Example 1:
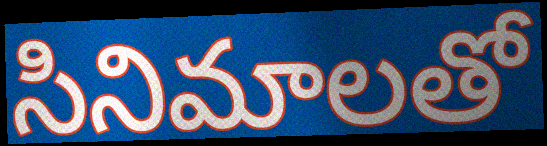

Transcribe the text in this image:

సినిమాలతో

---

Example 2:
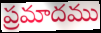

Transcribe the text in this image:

ప్రమాదము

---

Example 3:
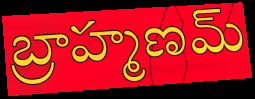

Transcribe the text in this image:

బ్రాహ్మణమ్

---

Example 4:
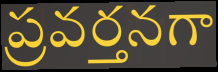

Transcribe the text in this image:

ప్రవర్తనగా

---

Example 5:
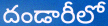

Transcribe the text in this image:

దండారీలో